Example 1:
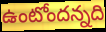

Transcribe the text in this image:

ఉంటోందన్నది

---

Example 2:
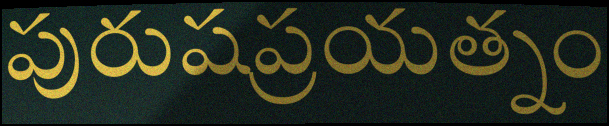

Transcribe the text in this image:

పురుషప్రయత్నం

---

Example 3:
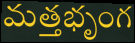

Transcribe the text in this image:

మత్తభృంగ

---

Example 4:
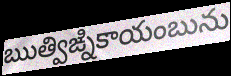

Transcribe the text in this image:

ఋత్విఙ్నికాయంబును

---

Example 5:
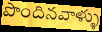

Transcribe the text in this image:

పొందినవాళ్ళు